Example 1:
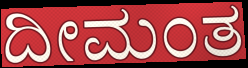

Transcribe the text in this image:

ದೀಮಂತ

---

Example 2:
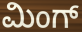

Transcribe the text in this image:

ಮಿಂಗ್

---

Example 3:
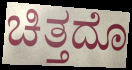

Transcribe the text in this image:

ಚಿತ್ತದೊ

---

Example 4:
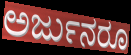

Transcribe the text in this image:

ಅರ್ಜುನರೂ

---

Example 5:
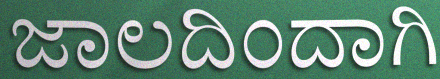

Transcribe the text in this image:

ಜಾಲದಿಂದಾಗಿ